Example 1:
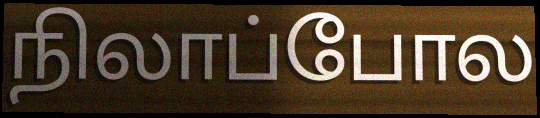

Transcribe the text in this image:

நிலாப்போல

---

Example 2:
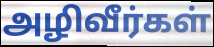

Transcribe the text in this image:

அழிவீர்கள்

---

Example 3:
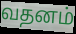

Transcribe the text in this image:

வதனம்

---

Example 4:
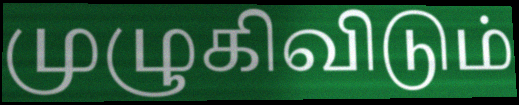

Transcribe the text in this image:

முழுகிவிடும்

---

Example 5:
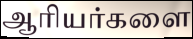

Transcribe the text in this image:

ஆரியர்களை